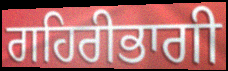
ਗਹਿਰੀਭਾਗੀ